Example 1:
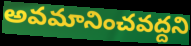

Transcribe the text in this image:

అవమానించవద్దని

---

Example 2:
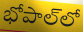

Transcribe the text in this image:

భోపాల్‌లో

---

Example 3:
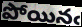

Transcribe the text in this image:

పోయినఁ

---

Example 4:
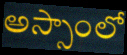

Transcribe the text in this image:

అస్సాంలో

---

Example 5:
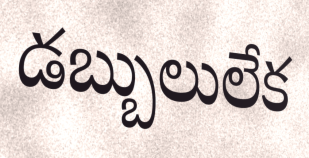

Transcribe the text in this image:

డబ్బులులేక